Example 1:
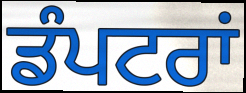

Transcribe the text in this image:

ਡੰਪਟਰਾਂ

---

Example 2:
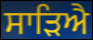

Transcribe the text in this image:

ਸਾੜਿਐ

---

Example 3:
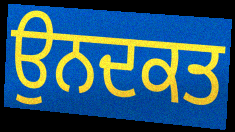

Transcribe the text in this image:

ਉਨਦਕਤ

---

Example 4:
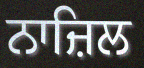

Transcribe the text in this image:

ਨਾਜ਼ਿਲ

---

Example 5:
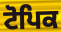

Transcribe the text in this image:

ਟੋਪਿਕ